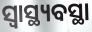
ସ୍ୱାସ୍ଥ୍ୟବସ୍ଥା